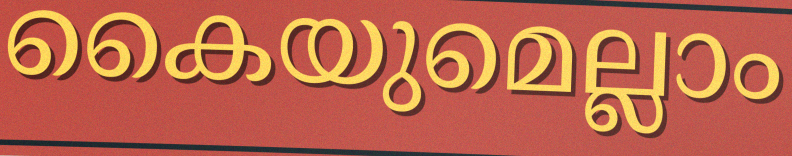
കൈയുമെല്ലാം